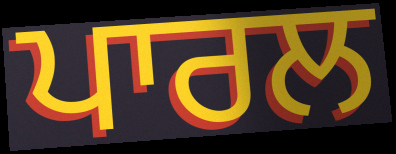
ਪਾਰਲ